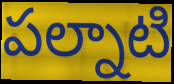
పల్నాటి